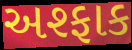
અશ્ફાક